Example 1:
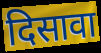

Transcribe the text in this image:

दिसावा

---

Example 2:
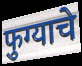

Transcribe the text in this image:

फुग्याचे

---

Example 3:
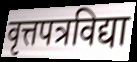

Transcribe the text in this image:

वृत्तपत्रविद्या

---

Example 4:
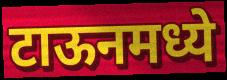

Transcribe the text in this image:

टाऊनमध्ये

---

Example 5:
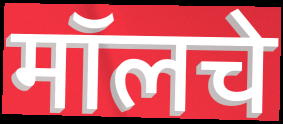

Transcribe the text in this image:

मॉलचे